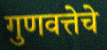
गुणवत्तेचे